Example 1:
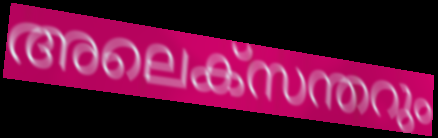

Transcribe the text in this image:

അലെക്സന്തറും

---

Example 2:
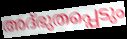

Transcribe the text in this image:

അദ്ഭുതപ്പെടും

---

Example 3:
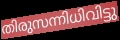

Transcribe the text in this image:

തിരുസന്നിധിവിട്ടു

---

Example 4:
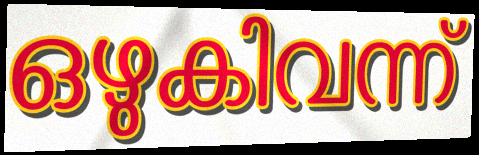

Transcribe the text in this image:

ഒഴുകിവന്ന്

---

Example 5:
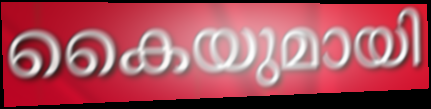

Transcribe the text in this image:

കൈയുമായി